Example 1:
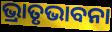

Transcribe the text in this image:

ଭ୍ରାତୃଭାବନା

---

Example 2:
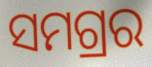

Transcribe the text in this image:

ସମଗ୍ରର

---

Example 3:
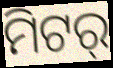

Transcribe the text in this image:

ମିଟର୍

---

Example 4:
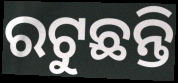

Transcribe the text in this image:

ରଟୁଛନ୍ତି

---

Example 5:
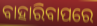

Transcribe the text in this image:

ବାହାରିବାପରେ